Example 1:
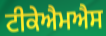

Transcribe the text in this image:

ਟੀਕੇਐਮਐਸ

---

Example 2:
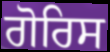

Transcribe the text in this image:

ਗੋਰਿਸ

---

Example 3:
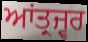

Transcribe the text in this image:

ਆਂਤ੍ਰਜ੍ਵਰ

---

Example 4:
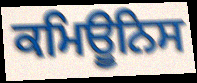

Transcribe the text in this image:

ਕਮਿਊਨਿਸ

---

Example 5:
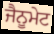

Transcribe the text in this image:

ਜੈਨੂਮੇਟ